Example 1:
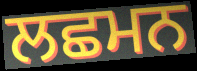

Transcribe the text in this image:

ਲਛਮਨ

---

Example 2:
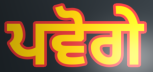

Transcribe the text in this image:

ਪਵੋਗੇ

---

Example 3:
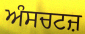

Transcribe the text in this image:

ਅੰਸਚਟਜ਼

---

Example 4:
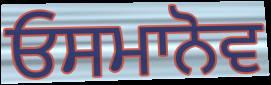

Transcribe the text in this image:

ਓਸਮਾਨੋਵ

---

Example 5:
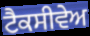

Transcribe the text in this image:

ਟੈਕਸੀਵੇਅ